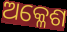
ଅକ୍ଳେଶ